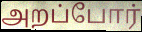
அறப்போர்